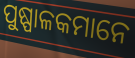
ପୁଷ୍ପାଳକମାନେ